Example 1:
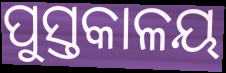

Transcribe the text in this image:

ପୁସ୍ତକାଳୟ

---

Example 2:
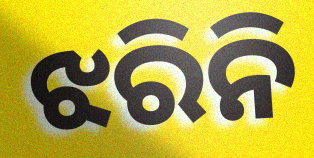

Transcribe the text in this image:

ଝରିନି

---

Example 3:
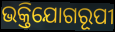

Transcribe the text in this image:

ଭକ୍ତିଯୋଗରୂପୀ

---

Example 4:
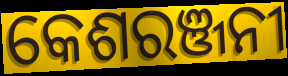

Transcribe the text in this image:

କେଶରଞ୍ଜନୀ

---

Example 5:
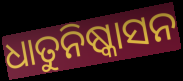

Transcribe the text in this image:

ଧାତୁନିଷ୍କାସନ